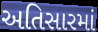
અતિસારમાં